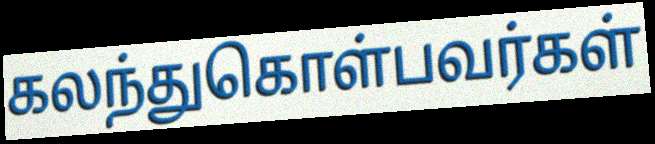
கலந்துகொள்பவர்கள்